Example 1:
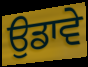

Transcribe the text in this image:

ਉਡਾਵੇ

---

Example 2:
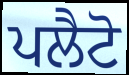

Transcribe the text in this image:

ਪਲੈਟੋ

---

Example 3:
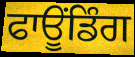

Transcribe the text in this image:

ਫਾਊਂਡਿੰਗ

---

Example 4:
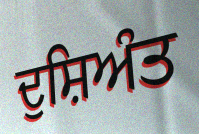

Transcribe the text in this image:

ਦੁਸ਼ਿਅੰਤ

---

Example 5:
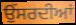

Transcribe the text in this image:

ਉੱਸਰਦੀਆਂ